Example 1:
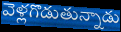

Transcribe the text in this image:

వెళ్లగొడుతున్నాడు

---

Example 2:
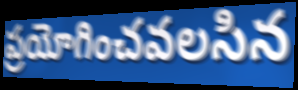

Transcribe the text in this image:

ప్రయోగించవలసిన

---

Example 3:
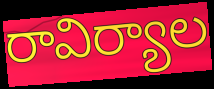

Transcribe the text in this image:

రావిర్యాల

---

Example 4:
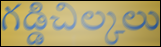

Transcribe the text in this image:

గడ్డిచిల్కలు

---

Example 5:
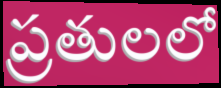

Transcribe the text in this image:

ప్రతులలో